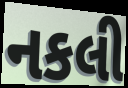
નકલી